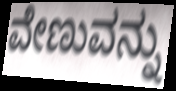
ವೇಣುವನ್ನು